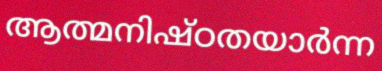
ആത്മനിഷ്ഠതയാർന്ന